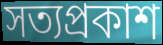
সত্যপ্ৰকাশ